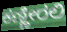
ಕಣ್ಣೀರಲಿ